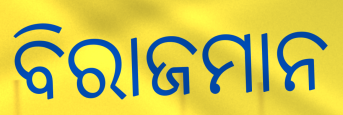
ବିରାଜମାନ